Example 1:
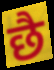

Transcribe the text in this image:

छै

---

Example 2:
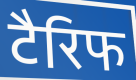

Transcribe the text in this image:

टैरिफ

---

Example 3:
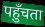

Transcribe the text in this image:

पहुँचता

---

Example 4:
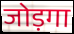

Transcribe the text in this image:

जोड़गा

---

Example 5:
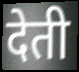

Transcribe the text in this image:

देती